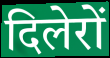
दिलेरों